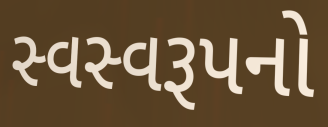
સ્વસ્વરૂપનો